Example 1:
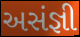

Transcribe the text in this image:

અસંજ્ઞી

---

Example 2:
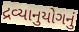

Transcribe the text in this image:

દ્રવ્યાનુયોગનું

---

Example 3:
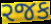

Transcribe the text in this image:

રજક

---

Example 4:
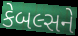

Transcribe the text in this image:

કેબલ્સને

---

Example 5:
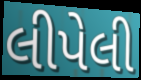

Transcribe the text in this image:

લીપેલી